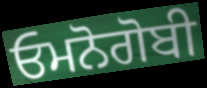
ਓਮਨੋਗੋਬੀ